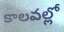
కాలవల్లో